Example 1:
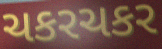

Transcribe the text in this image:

ચકરચકર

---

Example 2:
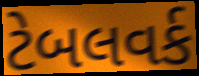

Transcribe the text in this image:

ટેબલવર્ક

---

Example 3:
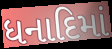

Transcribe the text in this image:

ધનાદિમાં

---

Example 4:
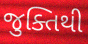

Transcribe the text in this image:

જુક્તિથી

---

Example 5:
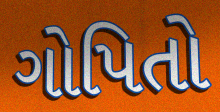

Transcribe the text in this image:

ગોપિતો